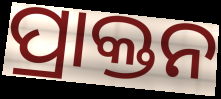
ପ୍ରାକ୍ତନ